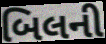
બિલની